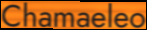
Chamaeleo